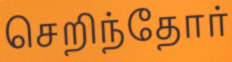
செறிந்தோர்